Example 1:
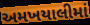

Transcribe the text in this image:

અમખયાલીમાં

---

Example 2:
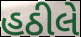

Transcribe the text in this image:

હઠીલે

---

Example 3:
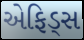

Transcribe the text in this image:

એફિડ્સ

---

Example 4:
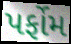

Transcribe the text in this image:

પર્ફોમ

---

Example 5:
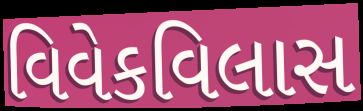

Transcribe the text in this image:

વિવેકવિલાસ